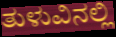
ತುಳುವಿನಲ್ಲಿ